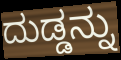
ದುಡ್ಡನ್ನು